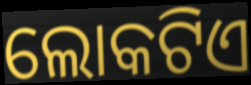
ଲୋକଟିଏ